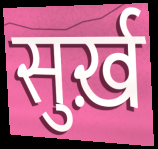
सुर्ख़